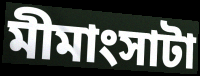
মীমাংসাটা